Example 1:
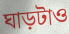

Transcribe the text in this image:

ঘাড়টাও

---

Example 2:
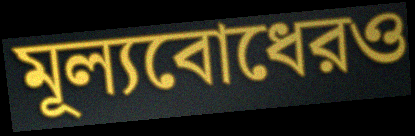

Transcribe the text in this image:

মূল্যবোধেরও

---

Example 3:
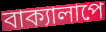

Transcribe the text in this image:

বাক্যালাপে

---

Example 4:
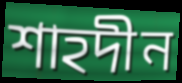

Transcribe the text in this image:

শাহদীন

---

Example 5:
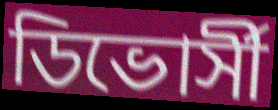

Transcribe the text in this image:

ডিভোর্সী